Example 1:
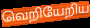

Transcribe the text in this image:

வெறியேறிய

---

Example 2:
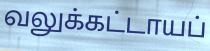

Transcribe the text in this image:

வலுக்கட்டாயப்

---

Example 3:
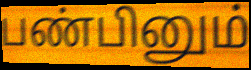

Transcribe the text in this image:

பண்பினும்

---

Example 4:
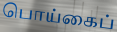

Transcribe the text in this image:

பொய்கைப்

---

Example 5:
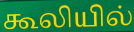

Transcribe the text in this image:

கூலியில்